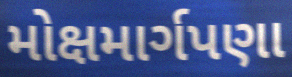
મોક્ષમાર્ગપણા